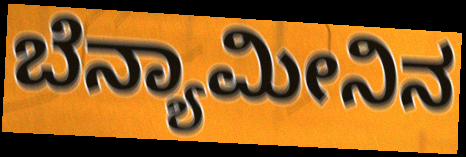
ಬೆನ್ಯಾಮೀನಿನ